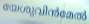
യേശുവിൻമേൽ